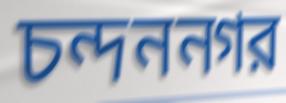
চন্দননগর